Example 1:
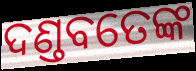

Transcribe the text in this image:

ଦଣ୍ଡବତେଙ୍କ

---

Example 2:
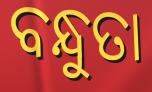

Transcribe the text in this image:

ବନ୍ଧୁତା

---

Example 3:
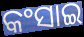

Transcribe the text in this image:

କଂସାଇ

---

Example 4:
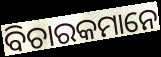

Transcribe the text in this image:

ବିଚାରକମାନେ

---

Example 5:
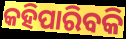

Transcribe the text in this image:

କହିପାରିବକି